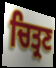
ਚਿਤ੍ਰਣ